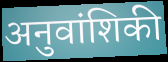
अनुवांशिकी